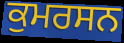
ਕੁਮਰਸਨ